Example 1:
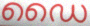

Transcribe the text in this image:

ഡൈ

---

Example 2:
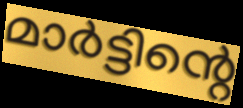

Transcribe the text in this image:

മാർട്ടിന്റെ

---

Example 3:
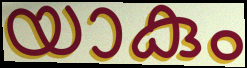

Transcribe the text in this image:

യാകും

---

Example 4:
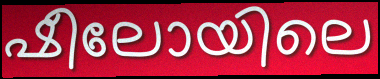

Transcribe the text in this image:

ഷീലോയിലെ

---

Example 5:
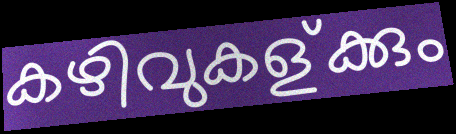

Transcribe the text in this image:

കഴിവുകള്ക്കും